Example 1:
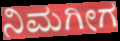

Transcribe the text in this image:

ನಿಮಗೀಗ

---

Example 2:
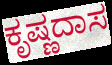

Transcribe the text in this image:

ಕೃಷ್ಣದಾಸ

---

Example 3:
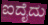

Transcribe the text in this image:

ಐದೈದು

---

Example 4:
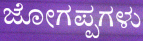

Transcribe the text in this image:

ಜೋಗಪ್ಪಗಳು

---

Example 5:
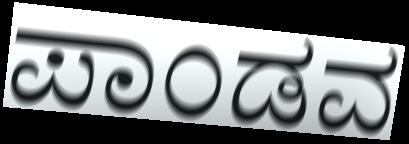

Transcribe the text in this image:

ಪಾಂಡವ